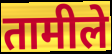
तामीले